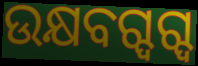
ଉକ୍ଷବଗ୍ଦଗ୍ଦ